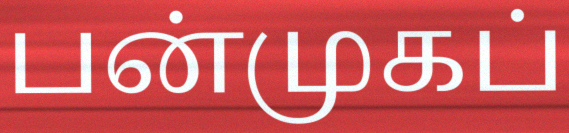
பன்முகப்